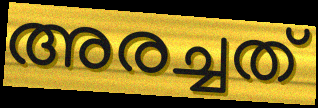
അരച്ചത്